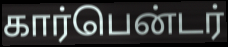
கார்பென்டர்